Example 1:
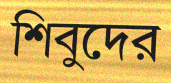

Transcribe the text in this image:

শিবুদের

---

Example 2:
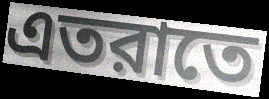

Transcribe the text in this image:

এতরাতে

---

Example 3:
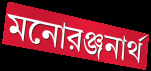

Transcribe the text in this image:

মনোরঞ্জনার্থ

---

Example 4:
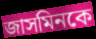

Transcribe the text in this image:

জাসমিনকে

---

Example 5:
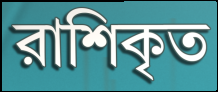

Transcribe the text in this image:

রাশিকৃত